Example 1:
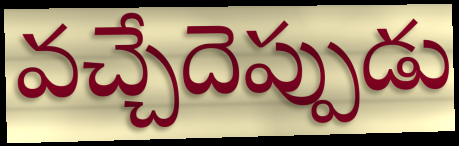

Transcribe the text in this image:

వచ్చేదెప్పుడు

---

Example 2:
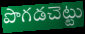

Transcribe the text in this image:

పొగడచెట్టు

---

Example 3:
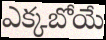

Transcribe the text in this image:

ఎక్కబోయే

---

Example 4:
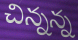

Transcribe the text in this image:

చిన్నన్న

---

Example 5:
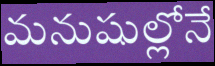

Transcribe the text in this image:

మనుషుల్లోనే